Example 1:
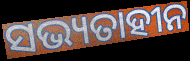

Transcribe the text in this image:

ସଭ୍ୟତାହୀନ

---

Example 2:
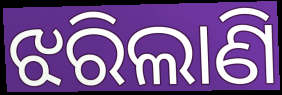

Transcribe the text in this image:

ଝରିଲାଣି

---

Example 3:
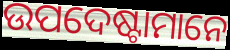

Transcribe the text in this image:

ଉପଦେଷ୍ଟାମାନେ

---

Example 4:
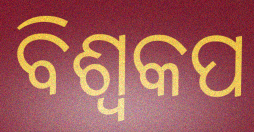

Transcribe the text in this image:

ବିଶ୍ବକପ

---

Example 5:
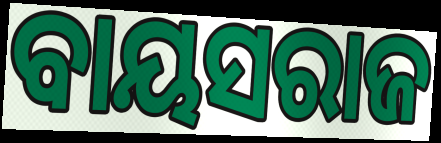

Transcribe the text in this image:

ବାୟସରାଜ